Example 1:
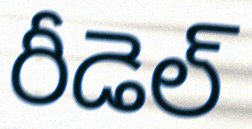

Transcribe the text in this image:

రీడెల్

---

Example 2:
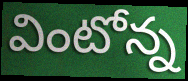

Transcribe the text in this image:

వింటోన్న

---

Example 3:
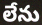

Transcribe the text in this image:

లేను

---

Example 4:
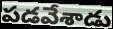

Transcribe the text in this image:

పడవేశాడు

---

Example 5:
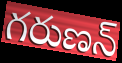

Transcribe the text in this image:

గరుణన్